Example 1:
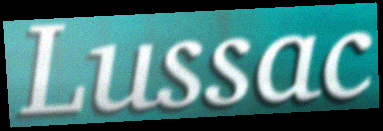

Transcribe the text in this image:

Lussac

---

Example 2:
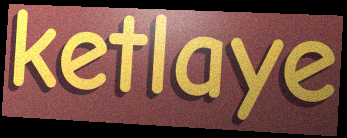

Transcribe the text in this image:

ketlaye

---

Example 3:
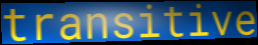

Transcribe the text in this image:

transitive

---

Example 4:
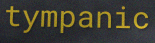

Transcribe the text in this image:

tympanic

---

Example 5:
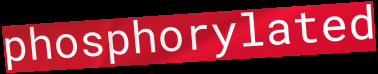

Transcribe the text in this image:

phosphorylated